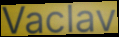
Vaclav